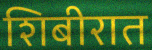
शिबीरात